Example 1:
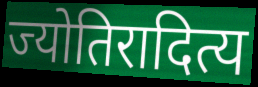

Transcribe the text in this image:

ज्योतिरादित्य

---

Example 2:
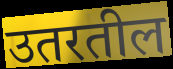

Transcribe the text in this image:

उतरतील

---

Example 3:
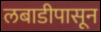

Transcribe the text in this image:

लबाडीपासून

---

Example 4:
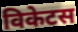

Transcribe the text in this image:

विकेटस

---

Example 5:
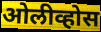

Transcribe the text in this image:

ओलीव्होस